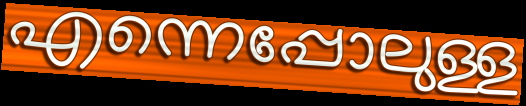
എന്നെപ്പോലുള്ള